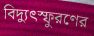
বিদ্যুৎস্ফুরণের